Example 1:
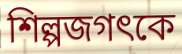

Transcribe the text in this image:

শিল্পজগৎকে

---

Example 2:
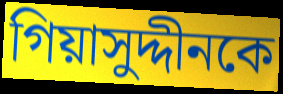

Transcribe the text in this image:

গিয়াসুদ্দীনকে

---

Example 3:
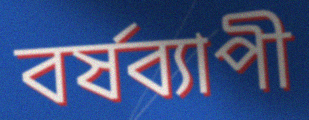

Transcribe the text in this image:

বর্ষব্যাপী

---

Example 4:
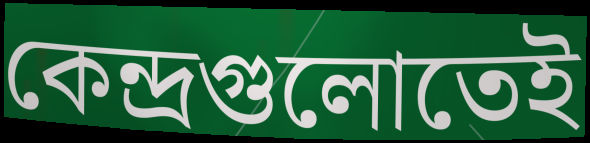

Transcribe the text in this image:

কেন্দ্রগুলোতেই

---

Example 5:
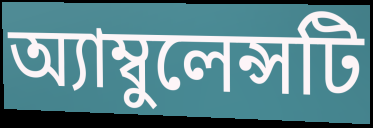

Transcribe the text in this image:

অ্যাম্বুলেন্সটি